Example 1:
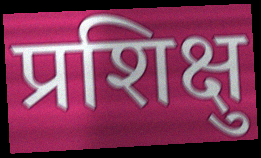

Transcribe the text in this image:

प्रशिक्षु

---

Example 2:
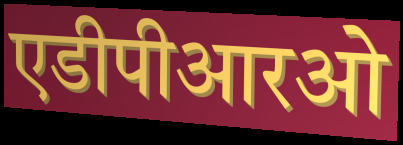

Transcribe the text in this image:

एडीपीआरओ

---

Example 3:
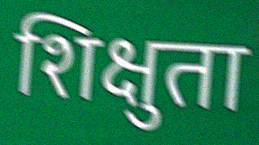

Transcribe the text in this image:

शिक्षुता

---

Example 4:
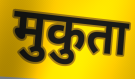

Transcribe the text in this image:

मुकुता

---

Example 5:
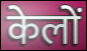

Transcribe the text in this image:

केलों